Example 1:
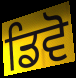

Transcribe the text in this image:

ਡਿਵੋ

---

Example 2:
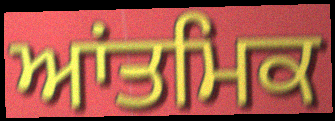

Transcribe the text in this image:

ਆਂਤਮਿਕ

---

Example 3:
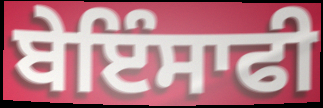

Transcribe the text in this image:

ਬੇਇੰਸਾਫੀ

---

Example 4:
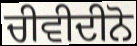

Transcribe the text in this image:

ਚੀਵੀਦੀਨੋ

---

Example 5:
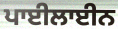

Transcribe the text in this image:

ਪਾਈਲਾਈਨ